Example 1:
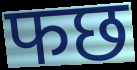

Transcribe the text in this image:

फछ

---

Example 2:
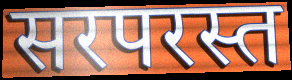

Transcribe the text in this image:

सरपरस्त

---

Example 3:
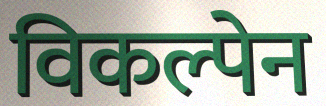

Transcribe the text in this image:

विकल्पेन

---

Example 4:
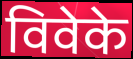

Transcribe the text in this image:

विवेके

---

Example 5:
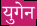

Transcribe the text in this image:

युगेन